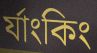
র্যাংকিং